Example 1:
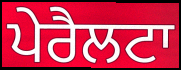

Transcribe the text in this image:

ਪੇਰੈਲਟਾ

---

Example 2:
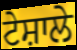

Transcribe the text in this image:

ਟੇਸ਼ਾਲੇ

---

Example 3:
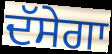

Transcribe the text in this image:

ਦੱਸੇਗਾ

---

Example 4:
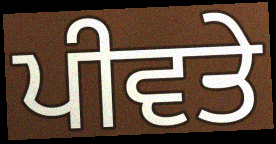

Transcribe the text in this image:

ਪੀਵਤੇ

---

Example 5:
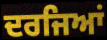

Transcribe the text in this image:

ਦਰਜਿਆਂ